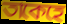
তাকেহে